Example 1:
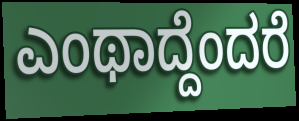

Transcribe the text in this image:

ಎಂಥಾದ್ದೆಂದರೆ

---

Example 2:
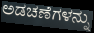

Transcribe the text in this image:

ಅಡಚಣೆಗಳನ್ನು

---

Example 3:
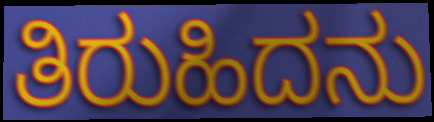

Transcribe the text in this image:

ತಿರುಹಿದನು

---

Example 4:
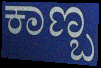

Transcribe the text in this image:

ಕಾಣ್ಬ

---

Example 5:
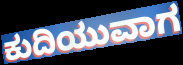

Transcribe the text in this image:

ಕುದಿಯುವಾಗ